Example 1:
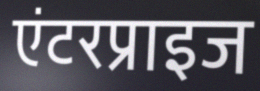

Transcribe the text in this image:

एंटरप्राइज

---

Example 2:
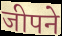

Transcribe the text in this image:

जीपने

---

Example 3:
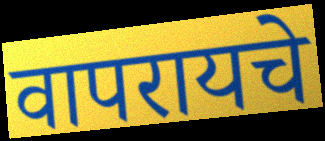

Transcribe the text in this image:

वापरायचे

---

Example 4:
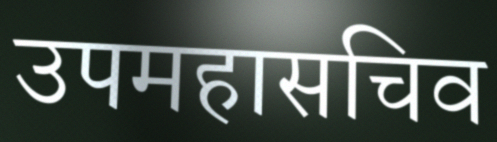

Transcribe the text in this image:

उपमहासचिव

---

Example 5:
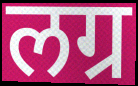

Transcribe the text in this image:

लग्र